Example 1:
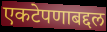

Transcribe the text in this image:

एकटेपणाबद्दल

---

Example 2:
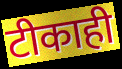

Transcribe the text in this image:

टीकाही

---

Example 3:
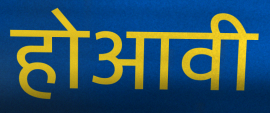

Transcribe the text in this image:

होआवी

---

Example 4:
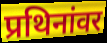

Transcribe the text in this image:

प्रथिनांवर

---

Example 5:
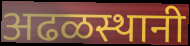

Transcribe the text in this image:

अढळस्थानी